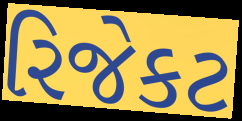
રિજેકટ